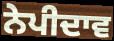
ਨੇਪੀਦਾਵ